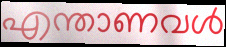
എന്താണവൾ